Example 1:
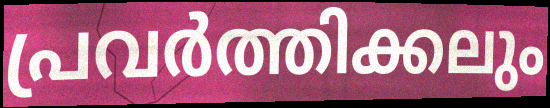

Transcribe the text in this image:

പ്രവർത്തിക്കലും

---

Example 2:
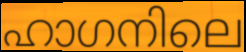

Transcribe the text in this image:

ഹാഗനിലെ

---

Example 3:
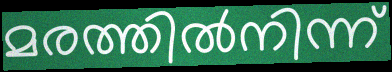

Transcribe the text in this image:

മരത്തിൽനിന്ന്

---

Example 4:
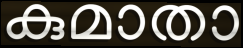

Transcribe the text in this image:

കുമാതാ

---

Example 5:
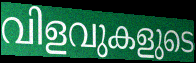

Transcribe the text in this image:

വിളവുകളുടെ